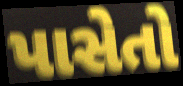
પાસેતો